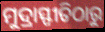
ମୁଦ୍ରାସ୍ଫୀତିଠାରୁ